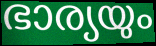
ഭാര്യയും